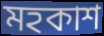
মহকাশ